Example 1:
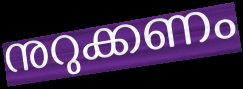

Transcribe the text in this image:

നുറുക്കണം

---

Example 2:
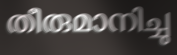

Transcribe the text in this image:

തീരുമാനിച്ചു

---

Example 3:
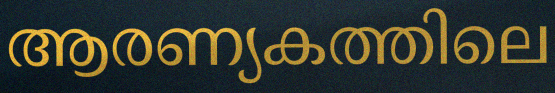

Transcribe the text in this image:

ആരണ്യകത്തിലെ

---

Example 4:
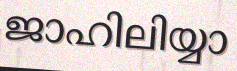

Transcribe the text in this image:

ജാഹിലിയ്യാ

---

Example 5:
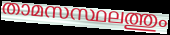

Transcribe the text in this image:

താമസസ്ഥലത്തും